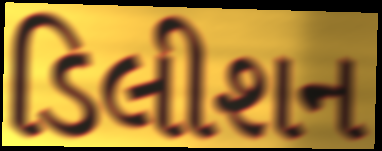
ડિલીશન